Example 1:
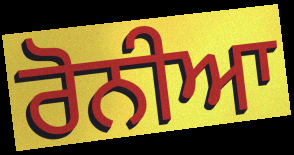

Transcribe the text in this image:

ਰੋਨੀਆ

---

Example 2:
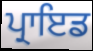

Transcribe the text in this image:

ਪ੍ਰਾਇਡ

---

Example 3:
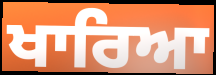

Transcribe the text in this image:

ਖਾਰਿਆ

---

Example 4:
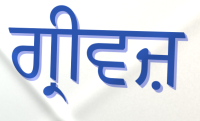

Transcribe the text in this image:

ਗ੍ਰੀਵਜ਼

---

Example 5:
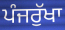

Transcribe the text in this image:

ਪੰਜਰੁੱਖਾ